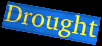
Drought